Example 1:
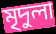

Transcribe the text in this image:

মৃদুলা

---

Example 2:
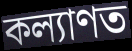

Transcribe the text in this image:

কল্যাণত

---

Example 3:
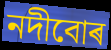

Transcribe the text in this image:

নদীবোৰ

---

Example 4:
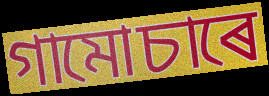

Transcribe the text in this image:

গামোচাৰে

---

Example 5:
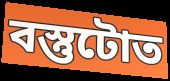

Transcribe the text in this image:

বস্তুটোত